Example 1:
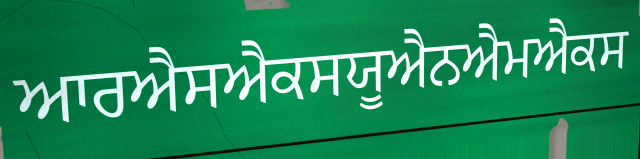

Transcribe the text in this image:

ਆਰਐਸਐਕਸਯੂਐਨਐਮਐਕਸ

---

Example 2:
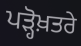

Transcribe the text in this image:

ਪੜ੍ਹੋਖ਼ਤਰੇ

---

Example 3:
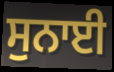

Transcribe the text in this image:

ਸੁਨਾਈ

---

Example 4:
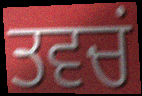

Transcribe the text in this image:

ਤਵਚਂ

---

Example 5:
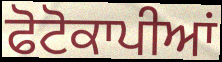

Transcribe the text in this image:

ਫੋਟੋਕਾਪੀਆਂ